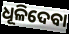
ଧୂଳିଦେବା